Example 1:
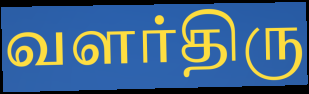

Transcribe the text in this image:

வளர்திரு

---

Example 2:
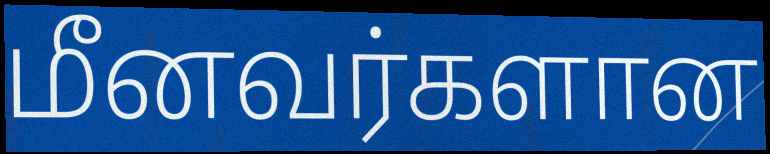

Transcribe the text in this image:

மீனவர்களான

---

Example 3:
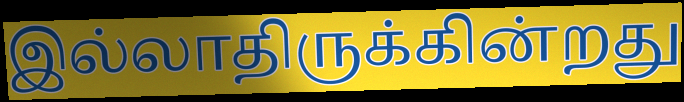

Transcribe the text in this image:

இல்லாதிருக்கின்றது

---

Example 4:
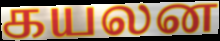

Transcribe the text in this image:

கயலன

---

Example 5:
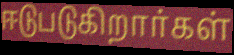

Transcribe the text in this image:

ஈடுபடுகிறார்கள்